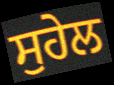
ਸੁਹੇਲ